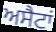
ਅਸੈਟਾਂ